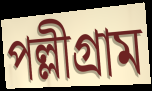
পল্লীগ্রাম